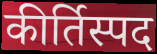
कीर्तिस्पद